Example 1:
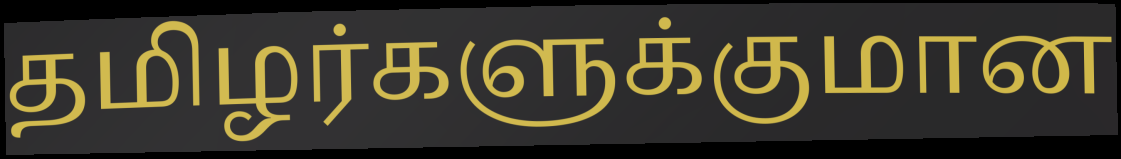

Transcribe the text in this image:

தமிழர்களுக்குமான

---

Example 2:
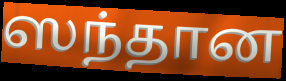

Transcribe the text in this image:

ஸந்தான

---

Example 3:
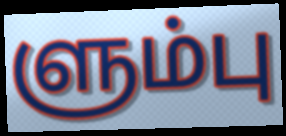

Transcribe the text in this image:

ளும்பு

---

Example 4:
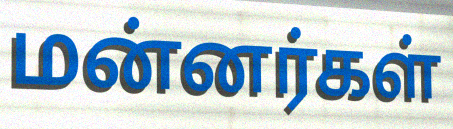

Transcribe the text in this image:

மன்னர்கள்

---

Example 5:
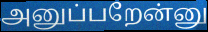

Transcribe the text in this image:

அனுப்பறேன்னு